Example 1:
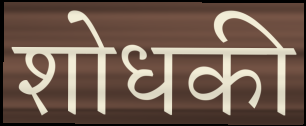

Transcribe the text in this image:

शोधकी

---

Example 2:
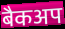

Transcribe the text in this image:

बैकअप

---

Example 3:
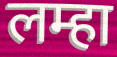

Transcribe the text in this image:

लम्हा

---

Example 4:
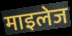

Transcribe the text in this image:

माइलेज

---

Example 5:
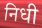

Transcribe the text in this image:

निधी